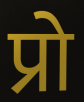
प्रो